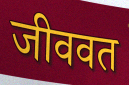
जीववत